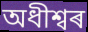
অধীশ্বৰ